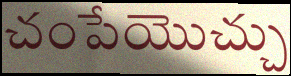
చంపేయొచ్చు